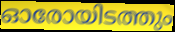
ഓരോയിടത്തും